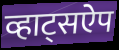
व्‍हाट्सऐप